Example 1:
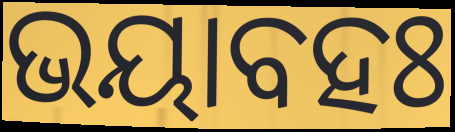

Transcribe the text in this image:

ଭୟାବହଃ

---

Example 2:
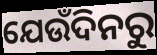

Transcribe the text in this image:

ଯେଉଁଦିନରୁ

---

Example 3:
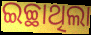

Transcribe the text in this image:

ଇଚ୍ଛାଥିଲା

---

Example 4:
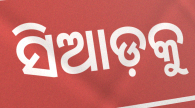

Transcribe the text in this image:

ସିଆଡ଼କୁ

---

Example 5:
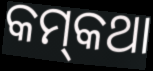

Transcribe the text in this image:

କମ୍‌କଥା